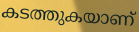
കടത്തുകയാണ്